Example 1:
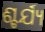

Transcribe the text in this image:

ଶ୍ଚର୍ଯ୍ୟ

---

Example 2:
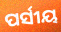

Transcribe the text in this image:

ପର୍ସୀୟ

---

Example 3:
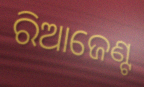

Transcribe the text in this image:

ରିଆଜେଣ୍ଟ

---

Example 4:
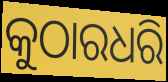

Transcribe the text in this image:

କୁଠାରଧରି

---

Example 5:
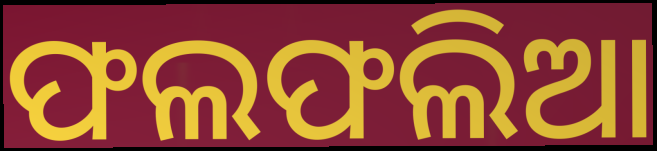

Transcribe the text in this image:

ଫଲଫଲିଆ